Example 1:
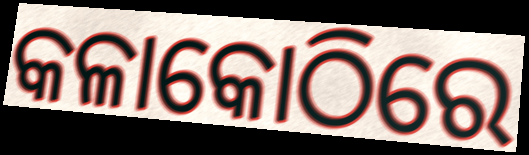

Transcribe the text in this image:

କଳାକୋଠିରେ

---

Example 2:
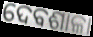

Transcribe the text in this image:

ଦେବଶାଳା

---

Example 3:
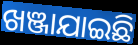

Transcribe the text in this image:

ଖଞ୍ଜାଯାଇଛି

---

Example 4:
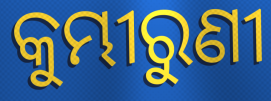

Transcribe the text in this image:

କୁମ୍ଭୀରୁଣୀ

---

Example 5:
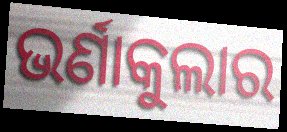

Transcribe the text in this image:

ଭର୍ଣାକୁଲାର